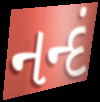
નન્દં